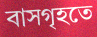
বাসগৃহতে